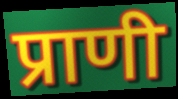
प्राणी